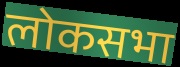
लोकसभा